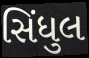
સિંધુલ